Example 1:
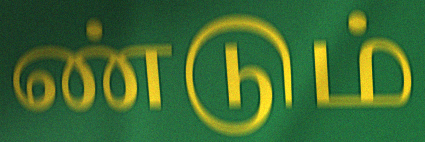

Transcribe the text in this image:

ண்டும்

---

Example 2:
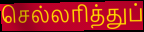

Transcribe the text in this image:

செல்லரித்துப்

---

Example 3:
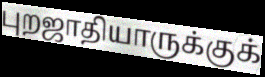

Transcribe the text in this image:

புறஜாதியாருக்குக்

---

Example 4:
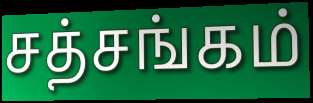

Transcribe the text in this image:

சத்சங்கம்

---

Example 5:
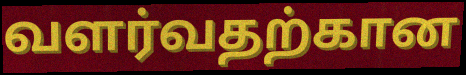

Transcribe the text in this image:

வளர்வதற்கான